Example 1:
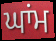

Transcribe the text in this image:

ਘਾਂਮ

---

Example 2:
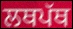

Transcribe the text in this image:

ਲਥਪੱਥ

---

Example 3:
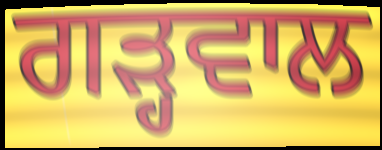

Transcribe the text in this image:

ਗੜ੍ਹਵਾਲ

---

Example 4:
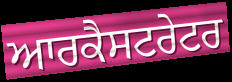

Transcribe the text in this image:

ਆਰਕੈਸਟਰੇਟਰ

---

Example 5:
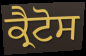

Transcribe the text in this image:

ਕ੍ਰੈਟੋਸ